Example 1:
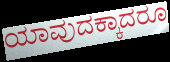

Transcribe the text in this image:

ಯಾವುದಕ್ಕಾದರೂ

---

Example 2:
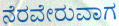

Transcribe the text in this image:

ನೆರವೇರುವಾಗ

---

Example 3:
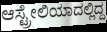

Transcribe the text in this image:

ಆಸ್ಟ್ರೇಲಿಯಾದಲ್ಲಿದ್ದ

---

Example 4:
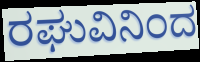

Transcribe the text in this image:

ರಘುವಿನಿಂದ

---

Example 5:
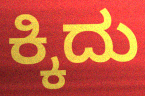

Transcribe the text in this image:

ಕ್ಕಿದು